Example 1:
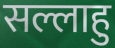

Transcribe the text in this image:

सल्लाहु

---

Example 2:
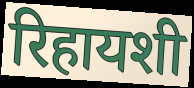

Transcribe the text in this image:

रिहायशी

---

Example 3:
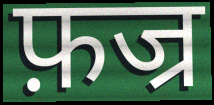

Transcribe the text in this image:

फ़ज्र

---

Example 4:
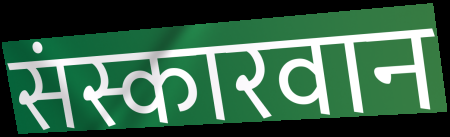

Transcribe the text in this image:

संस्कारवान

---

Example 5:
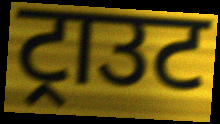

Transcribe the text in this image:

ट्राउट